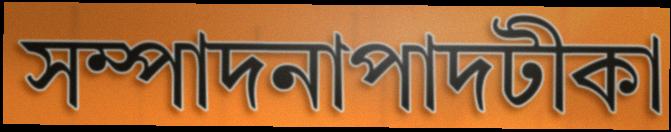
সম্পাদনাপাদটীকা